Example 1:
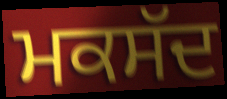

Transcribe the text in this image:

ਮਕਸੱਦ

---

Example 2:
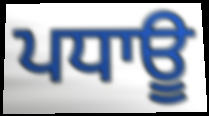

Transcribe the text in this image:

ਪਧਾਊ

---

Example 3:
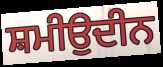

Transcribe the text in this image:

ਸ਼ਮੀਉਦੀਨ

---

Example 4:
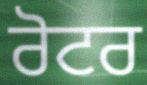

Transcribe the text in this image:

ਰੋਟਰ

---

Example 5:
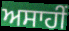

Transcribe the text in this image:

ਅਸਾਹੀਂ